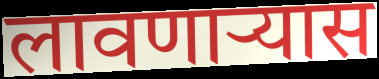
लावणाऱ्यास